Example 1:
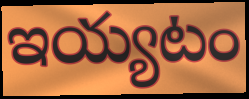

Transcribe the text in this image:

ఇయ్యటం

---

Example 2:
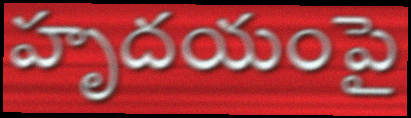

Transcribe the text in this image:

హృదయంపై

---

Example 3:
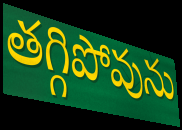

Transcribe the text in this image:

తగ్గిపోవును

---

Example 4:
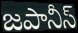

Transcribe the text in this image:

జపానీస్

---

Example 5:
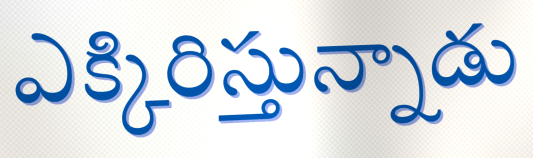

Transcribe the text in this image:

ఎక్కిరిస్తున్నాడు